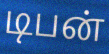
டிபன்